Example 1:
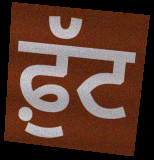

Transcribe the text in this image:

ਫ਼ੁੱਟ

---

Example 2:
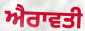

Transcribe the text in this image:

ਐਰਾਵਤੀ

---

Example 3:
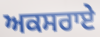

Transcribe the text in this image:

ਅਕਸਰਾਏ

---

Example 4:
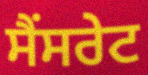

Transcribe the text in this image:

ਸੈਂਸਰੇਟ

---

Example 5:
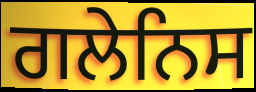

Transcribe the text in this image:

ਗਲੇਨਿਸ